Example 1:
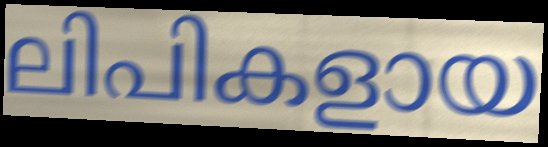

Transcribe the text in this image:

ലിപികളായ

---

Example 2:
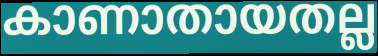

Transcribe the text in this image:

കാണാതായതല്ല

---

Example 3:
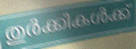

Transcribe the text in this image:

തുർക്കികൾക്ക്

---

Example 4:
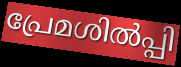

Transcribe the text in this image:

പ്രേമശിൽപ്പി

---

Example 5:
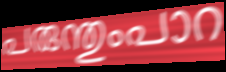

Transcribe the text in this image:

പരുന്തുംപാറ